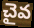
చైవ